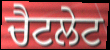
ਚੈਟਲੇਟ